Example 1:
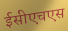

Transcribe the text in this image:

ईसीएचएस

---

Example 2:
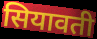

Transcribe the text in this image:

सियावती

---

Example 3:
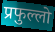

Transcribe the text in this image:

प्रफुल्लो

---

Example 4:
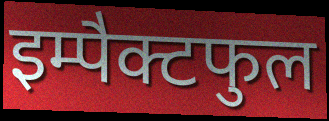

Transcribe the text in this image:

इम्पैक्टफुल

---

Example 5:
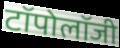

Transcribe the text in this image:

टॉपोलॉजी